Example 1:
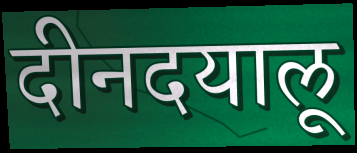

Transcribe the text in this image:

दीनदयालू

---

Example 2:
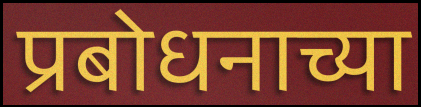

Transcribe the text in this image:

प्रबोधनाच्या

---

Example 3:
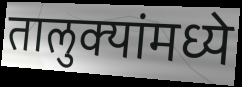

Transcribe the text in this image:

तालुक्यांमध्ये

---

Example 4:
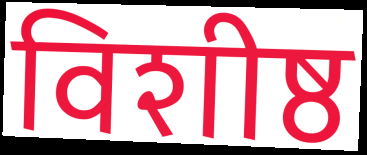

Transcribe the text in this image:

विशीष्ठ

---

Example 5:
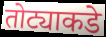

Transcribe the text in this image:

तोट्याकडे